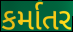
કર્માતર